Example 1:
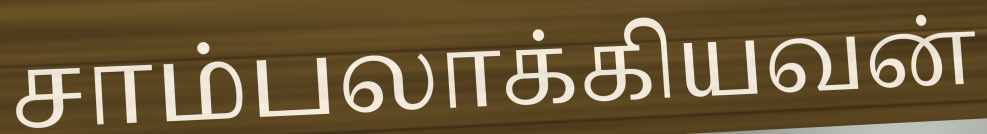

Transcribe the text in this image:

சாம்பலாக்கியவன்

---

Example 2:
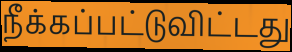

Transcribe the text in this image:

நீக்கப்பட்டுவிட்டது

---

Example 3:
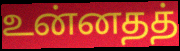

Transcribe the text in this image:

உன்னதத்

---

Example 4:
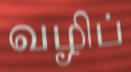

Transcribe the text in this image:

வழிப்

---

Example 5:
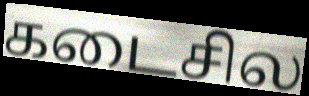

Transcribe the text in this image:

கடைசில